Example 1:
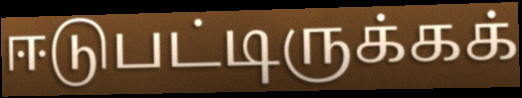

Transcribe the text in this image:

ஈடுபட்டிருக்கக்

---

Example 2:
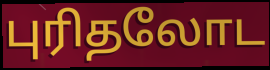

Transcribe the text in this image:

புரிதலோட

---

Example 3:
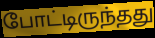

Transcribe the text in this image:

போட்டிருந்தது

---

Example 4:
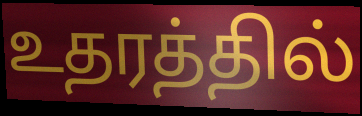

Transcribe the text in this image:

உதரத்தில்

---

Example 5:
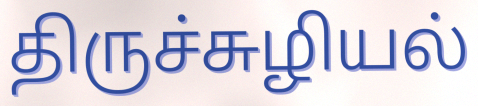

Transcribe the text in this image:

திருச்சுழியல்